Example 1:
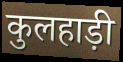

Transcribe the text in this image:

कुलहाड़ी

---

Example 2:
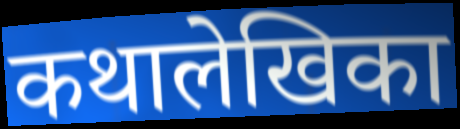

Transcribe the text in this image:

कथालेखिका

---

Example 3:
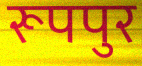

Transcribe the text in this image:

रूपपुर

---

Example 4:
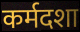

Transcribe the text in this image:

कर्मदशा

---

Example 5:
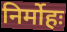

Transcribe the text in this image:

निर्मोहः